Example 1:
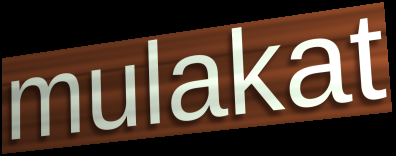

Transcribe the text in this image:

mulakat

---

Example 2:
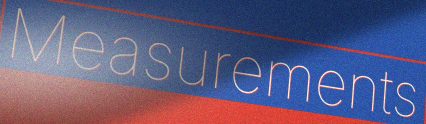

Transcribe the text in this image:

Measurements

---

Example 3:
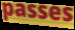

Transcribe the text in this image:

passes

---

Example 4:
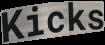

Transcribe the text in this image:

Kicks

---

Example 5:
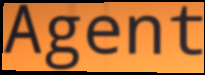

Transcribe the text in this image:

Agent